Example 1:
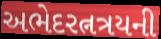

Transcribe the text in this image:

અભેદરત્નત્રયની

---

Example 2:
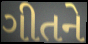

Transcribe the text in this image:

ગીતને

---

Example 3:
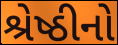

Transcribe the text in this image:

શ્રેષ્ઠીનો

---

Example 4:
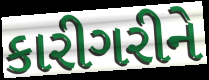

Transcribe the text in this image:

કારીગરીને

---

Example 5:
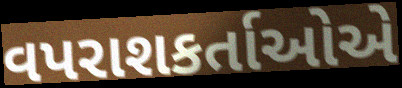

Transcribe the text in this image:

વપરાશકર્તાઓએ